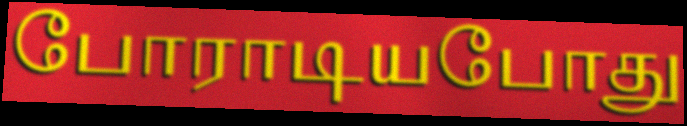
போராடியபோது